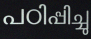
പഠിപ്പിച്ചു